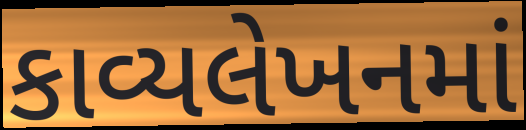
કાવ્યલેખનમાં